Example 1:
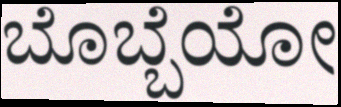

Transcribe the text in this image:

ಬೊಬ್ಬೆಯೋ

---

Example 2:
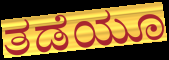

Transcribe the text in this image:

ತಡೆಯೂ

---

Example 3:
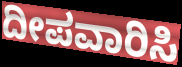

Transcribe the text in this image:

ದೀಪವಾರಿಸಿ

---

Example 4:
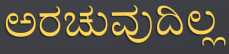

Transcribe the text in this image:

ಅರಚುವುದಿಲ್ಲ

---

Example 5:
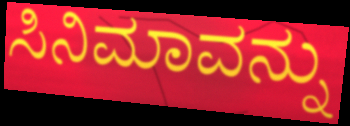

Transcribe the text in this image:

ಸಿನಿಮಾವನ್ನು